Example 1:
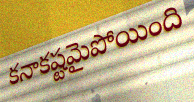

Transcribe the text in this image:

కనాకష్టమైపోయింది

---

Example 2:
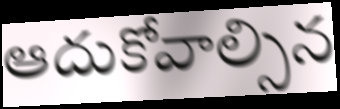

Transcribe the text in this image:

ఆదుకోవాల్సిన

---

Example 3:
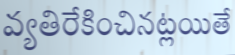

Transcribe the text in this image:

వ్యతిరేకించినట్లయితే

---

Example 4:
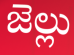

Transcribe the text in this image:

జెల్లు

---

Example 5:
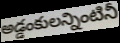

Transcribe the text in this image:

అడ్డంకులన్నింటినీ